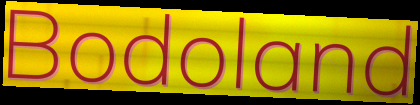
Bodoland